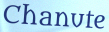
Chanute